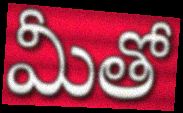
మీతో